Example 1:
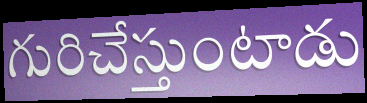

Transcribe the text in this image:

గురిచేస్తుంటాడు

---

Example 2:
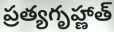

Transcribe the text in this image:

ప్రత్యగృహ్ణాత్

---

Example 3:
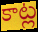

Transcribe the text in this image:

కాట్ల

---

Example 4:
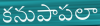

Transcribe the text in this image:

కనుపాపలా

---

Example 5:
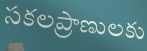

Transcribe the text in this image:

సకలప్రాణులకు